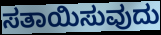
ಸತಾಯಿಸುವುದು